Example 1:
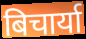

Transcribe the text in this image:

बिचार्या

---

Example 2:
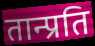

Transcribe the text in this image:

तान्प्रति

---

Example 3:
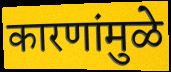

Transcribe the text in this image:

कारणांमुळे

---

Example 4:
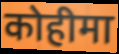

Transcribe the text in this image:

कोहीमा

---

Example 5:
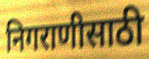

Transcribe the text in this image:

निगराणीसाठी